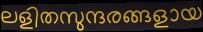
ലളിതസുന്ദരങ്ങളായ